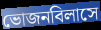
ভোজনবিলাসে